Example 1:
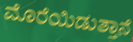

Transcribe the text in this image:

ಮೊರೆಯಿಡುತ್ತಾನೆ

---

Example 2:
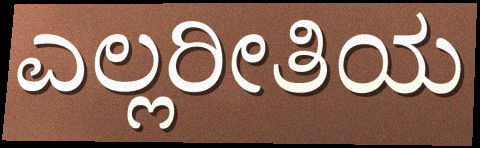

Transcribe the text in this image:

ಎಲ್ಲರೀತಿಯ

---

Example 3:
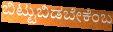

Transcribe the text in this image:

ಬಿಟ್ಟುಬಿಡಬೇಕೆಂಬ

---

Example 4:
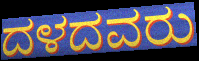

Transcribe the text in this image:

ದಳದವರು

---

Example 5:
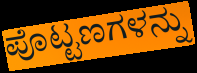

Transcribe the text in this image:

ಪೊಟ್ಟಣಗಳನ್ನು